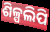
ଶିଳ୍ପଲିପି